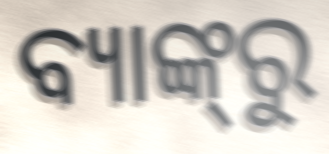
ବ୍ୟାଙ୍କ୍‌ରୁ